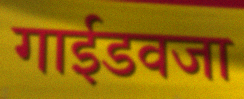
गाईडवजा